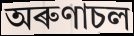
অৰুণাচল